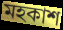
মহকাশ